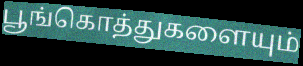
பூங்கொத்துகளையும்